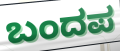
ಬಂದಪ